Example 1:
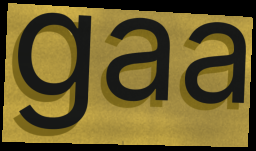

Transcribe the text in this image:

gaa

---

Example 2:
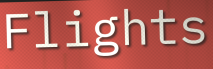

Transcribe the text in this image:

Flights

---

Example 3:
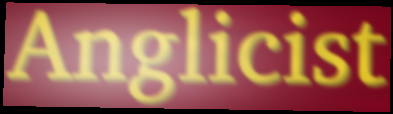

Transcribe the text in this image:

Anglicist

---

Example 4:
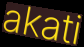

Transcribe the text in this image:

akati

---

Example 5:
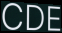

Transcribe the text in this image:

CDE